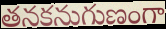
తనకనుగుణంగా